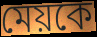
মেয়কে